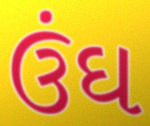
ઉંઘ